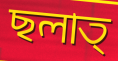
ছলাত্